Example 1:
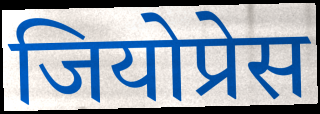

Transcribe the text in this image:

जियोप्रेस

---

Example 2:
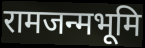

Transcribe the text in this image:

रामजन्मभूमि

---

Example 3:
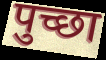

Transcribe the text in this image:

पुच्छा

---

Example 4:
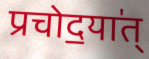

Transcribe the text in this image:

प्रचो॒दया॑त्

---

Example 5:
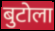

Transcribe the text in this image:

बुटोला